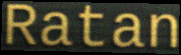
Ratan